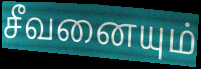
சீவனையும்